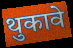
थुकावे